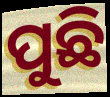
ପୁଛି